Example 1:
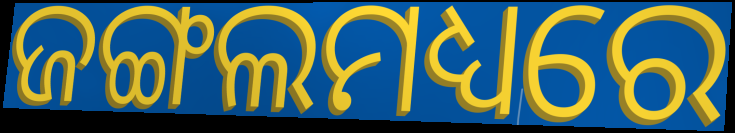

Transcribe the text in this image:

ଜଙ୍ଗଲମଧ୍ୟରେ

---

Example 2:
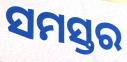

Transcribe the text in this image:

ସମସ୍ତର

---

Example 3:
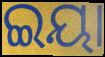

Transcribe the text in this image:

ଇୟା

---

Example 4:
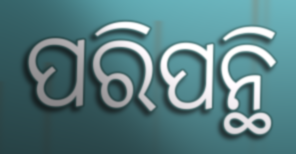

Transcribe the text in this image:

ପରିପନ୍ଥି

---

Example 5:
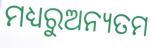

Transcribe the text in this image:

ମଧ୍ୟରୁଅନ୍ୟତମ